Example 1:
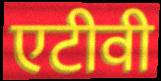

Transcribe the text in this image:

एटीवी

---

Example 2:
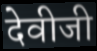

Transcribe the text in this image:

देवीजी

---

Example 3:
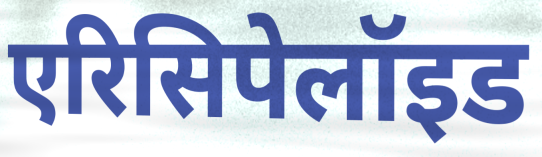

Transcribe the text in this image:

एरिसिपेलॉइड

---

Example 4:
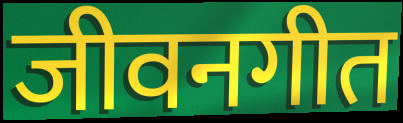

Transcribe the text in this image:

जीवनगीत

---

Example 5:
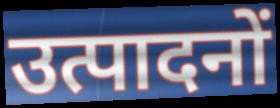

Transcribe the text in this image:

उत्पादनों